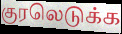
குரலெடுக்க